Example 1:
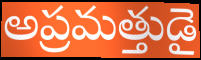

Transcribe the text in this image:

అప్రమత్తుడై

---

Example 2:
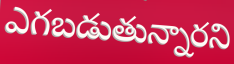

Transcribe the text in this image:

ఎగబడుతున్నారని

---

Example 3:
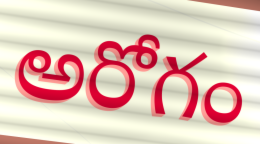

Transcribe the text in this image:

అరోగం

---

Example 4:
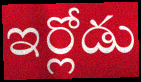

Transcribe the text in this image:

ఇర్లోడు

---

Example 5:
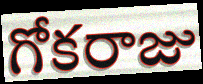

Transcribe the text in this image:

గోకరాజు